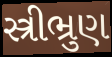
સ્ત્રીભ્રુણ